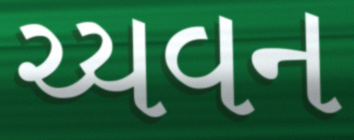
ચ્યવન